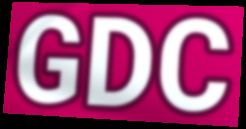
GDC